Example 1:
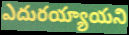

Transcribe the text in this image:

ఎదురయ్యాయని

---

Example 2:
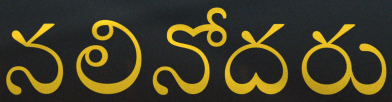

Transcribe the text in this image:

నలినోదరు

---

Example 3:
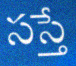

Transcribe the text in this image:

సస్తే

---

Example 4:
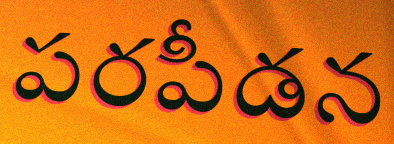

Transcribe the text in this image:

పరపీడన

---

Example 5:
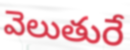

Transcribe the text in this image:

వెలుతురే